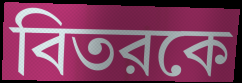
বিতরকে